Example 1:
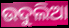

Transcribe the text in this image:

ଉଦୁଲିଆ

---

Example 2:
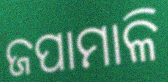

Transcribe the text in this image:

ଜପାମାଳି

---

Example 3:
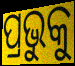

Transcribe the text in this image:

ପ୍ରଭୁକୁ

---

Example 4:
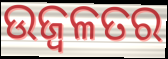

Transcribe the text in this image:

ଉଜ୍ବଳତର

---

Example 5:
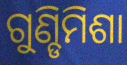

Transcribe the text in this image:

ଗୁଣ୍ଡିମିଶା